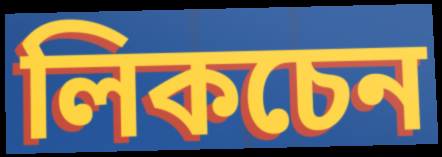
লিকচেন